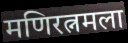
मणिरत्नमला